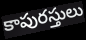
కాపురస్తులు